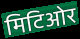
मिटिओर